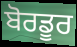
ਬੋਰਡੂਰ